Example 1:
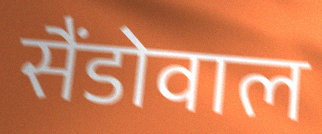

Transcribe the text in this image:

सैंडोवाल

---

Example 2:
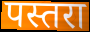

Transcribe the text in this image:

पस्तरा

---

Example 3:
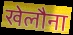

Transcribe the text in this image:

खेलौना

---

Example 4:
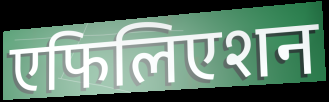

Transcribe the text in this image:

एफिलिएशन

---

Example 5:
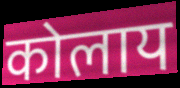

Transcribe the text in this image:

कोलाय